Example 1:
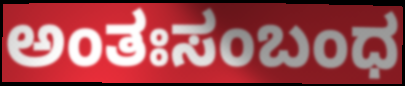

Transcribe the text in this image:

ಅಂತಃಸಂಬಂಧ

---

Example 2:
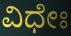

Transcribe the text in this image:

ವಿಧೇಃ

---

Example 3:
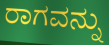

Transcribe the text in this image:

ರಾಗವನ್ನು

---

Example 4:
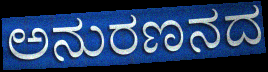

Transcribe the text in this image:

ಅನುರಣನದ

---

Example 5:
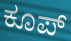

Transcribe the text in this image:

ಕೂಪ್